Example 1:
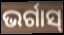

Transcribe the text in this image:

ଭର୍ଗାସ୍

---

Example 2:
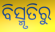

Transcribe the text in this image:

ବିସ୍ମୃତିରୁ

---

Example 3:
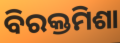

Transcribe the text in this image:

ବିରକ୍ତମିଶା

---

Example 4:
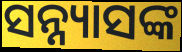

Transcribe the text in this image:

ସନ୍ନ୍ୟାସଙ୍କ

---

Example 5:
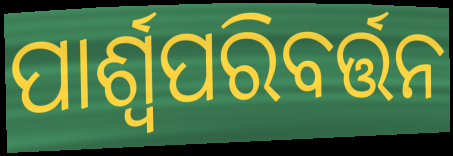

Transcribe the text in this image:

ପାର୍ଶ୍ଵପରିବର୍ତ୍ତନ